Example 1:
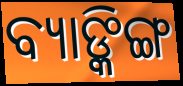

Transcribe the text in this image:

ବ୍ୟାଙ୍କିଙ୍ଗ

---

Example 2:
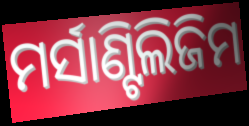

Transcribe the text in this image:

ମର୍ସାଣ୍ଟିଲିଜିମ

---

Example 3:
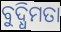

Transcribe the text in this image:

ବୁଦ୍ଧିମତା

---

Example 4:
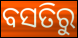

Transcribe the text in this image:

ବସତିରୁ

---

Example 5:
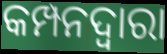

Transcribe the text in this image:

କମ୍ପନଦ୍ୱାରା